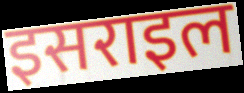
इसराइल